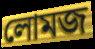
লোমজ